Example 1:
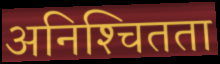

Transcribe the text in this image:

अनिश्‍चितता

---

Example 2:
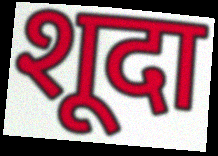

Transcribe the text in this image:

शूदा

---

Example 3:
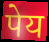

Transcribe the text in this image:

पेय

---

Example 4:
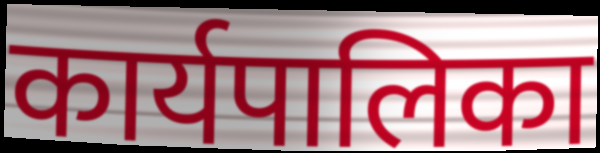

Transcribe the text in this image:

कार्यपालिका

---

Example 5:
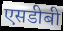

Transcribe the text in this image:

एसडीबी